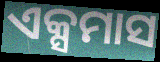
ଏକ୍ସମାସ